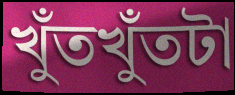
খুঁতখুঁতটা